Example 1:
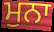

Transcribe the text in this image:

ਮੁਨਾ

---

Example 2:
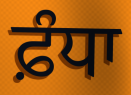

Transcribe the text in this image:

ਫ਼ੰਧਾ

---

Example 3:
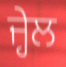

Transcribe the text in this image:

ਜ੍ਹੇਲ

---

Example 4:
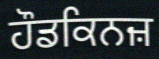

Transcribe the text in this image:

ਹੌਡਕਿਨਜ਼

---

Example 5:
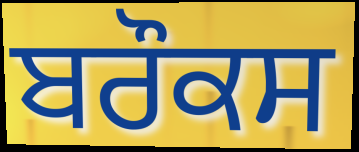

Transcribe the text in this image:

ਬਰੌਕਸ